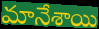
మానేశాయి